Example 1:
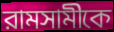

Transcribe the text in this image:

রামসামীকে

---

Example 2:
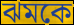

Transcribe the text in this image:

ঝমকে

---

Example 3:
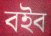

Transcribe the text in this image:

বইব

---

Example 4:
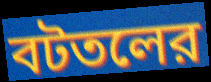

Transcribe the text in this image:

বটতলের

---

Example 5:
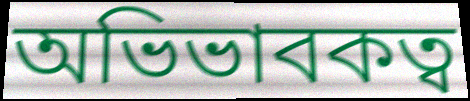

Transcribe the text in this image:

অভিভাবকত্ব